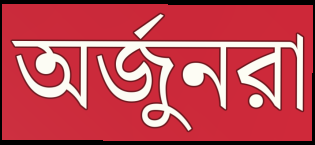
অর্জুনরা